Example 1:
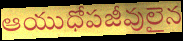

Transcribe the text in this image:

ఆయుధోపజీవులైన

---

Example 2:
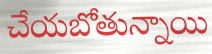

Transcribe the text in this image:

చేయబోతున్నాయి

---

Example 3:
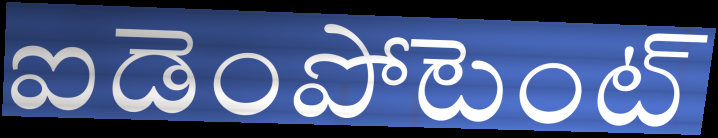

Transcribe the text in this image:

ఐడెంపోటెంట్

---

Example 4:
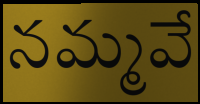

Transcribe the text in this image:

నమ్మవే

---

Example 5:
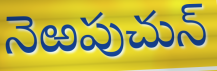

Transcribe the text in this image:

నెఱపుచున్